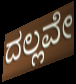
ದಲ್ಲವೇ